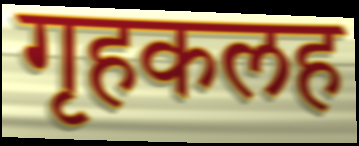
गृहकलह